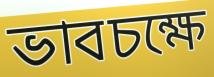
ভাবচক্ষে